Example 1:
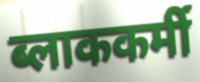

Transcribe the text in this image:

ब्लाककर्मी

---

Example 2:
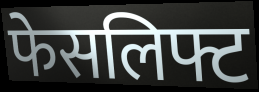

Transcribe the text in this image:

फेसलिफ्ट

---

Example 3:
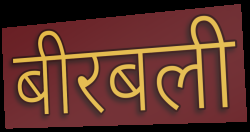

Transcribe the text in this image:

बीरबली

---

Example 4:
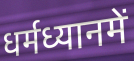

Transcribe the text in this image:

धर्मध्यानमें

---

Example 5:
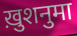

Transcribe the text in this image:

ख़ुशनुमा